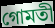
গোমতী